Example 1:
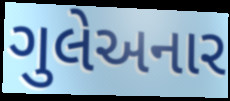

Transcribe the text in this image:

ગુલેઅનાર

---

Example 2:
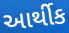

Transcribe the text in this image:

આર્થીક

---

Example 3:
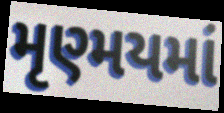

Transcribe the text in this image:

મૃણ્મયમાં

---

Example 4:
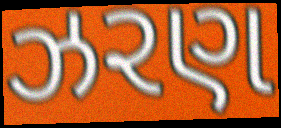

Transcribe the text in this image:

ઝરણ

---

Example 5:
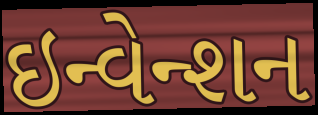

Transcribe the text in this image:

ઇન્વેન્શન